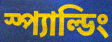
স্প্যাল্ডিং